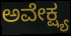
ಅವೇಕ್ಷ್ಯ